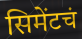
सिमेंटचं